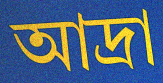
আদ্রা